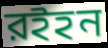
রইহন